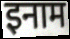
इनाम